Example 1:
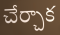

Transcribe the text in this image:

చేర్చాక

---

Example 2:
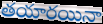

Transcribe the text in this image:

తయారయినా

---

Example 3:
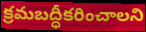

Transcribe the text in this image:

క్రమబద్ధీకరించాలని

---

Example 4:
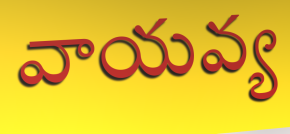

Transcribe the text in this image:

వాయవ్య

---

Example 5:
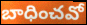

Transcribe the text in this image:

బాధించవో